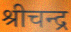
श्रीचन्द्र